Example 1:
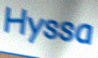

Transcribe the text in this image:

Hyssa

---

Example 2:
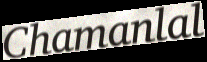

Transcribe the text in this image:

Chamanlal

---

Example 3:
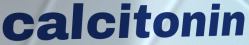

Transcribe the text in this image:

calcitonin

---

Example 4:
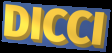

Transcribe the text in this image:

DICCI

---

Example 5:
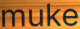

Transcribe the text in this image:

muke